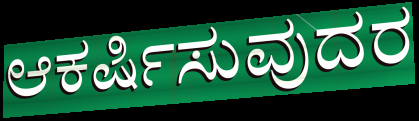
ಆಕರ್ಷಿಸುವುದರ